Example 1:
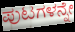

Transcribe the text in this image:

ಪುಟಗಳನ್ನೇ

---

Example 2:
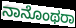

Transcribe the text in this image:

ನಾನೊಂಥರಾ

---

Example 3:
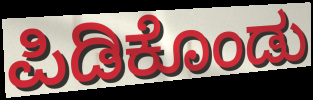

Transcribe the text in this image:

ಪಿಡಿಕೊಂಡು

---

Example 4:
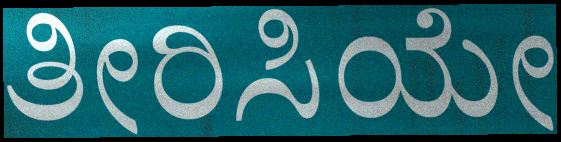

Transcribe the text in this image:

ತೀರಿಸಿಯೇ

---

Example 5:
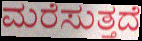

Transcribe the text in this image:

ಮರೆಸುತ್ತದೆ